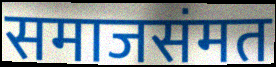
समाजसंमत